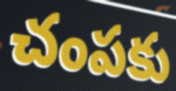
చంపకు